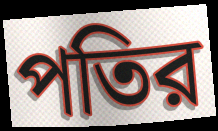
পতির